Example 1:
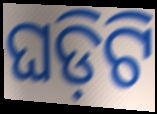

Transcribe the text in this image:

ଘଡ଼ିଟି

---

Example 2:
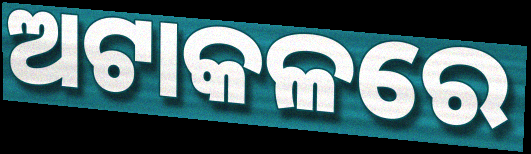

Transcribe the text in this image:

ଅଟାକଳରେ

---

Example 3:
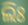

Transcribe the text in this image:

ଲିଃ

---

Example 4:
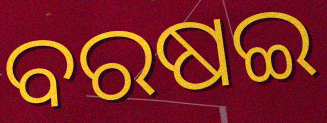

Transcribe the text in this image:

ବରଷଇ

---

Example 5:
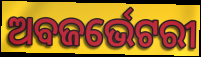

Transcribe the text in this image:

ଅବଜର୍ଭେଟରୀ